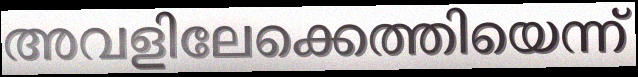
അവളിലേക്കെത്തിയെന്ന്